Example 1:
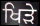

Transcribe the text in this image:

ਖਿੜੇ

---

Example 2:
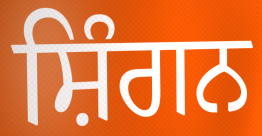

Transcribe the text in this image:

ਸ਼ਿੰਗਨ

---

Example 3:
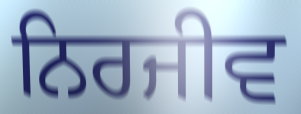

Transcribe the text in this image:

ਨਿਰਜੀਵ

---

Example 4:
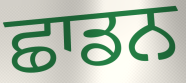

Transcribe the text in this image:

ਛਾਡਨ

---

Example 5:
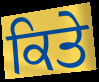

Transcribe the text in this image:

ਕਿਤੇ